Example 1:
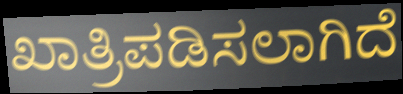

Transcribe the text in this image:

ಖಾತ್ರಿಪಡಿಸಲಾಗಿದೆ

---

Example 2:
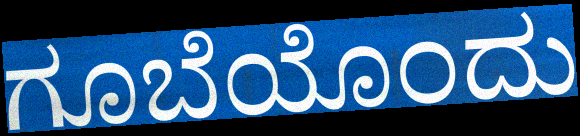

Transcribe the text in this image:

ಗೂಬೆಯೊಂದು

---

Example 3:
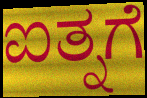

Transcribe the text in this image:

ಐತ್ನಗೆ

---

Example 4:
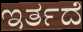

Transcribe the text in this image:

ಇರ್ತದೆ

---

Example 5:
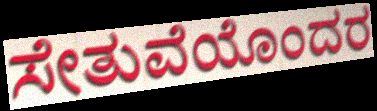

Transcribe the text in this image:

ಸೇತುವೆಯೊಂದರ